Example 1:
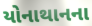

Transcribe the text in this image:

યોનાથાનના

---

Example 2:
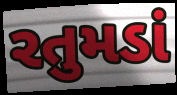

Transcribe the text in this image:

રતુમડાં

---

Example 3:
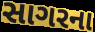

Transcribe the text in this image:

સાગરના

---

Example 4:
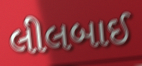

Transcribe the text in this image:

લીલબાઈ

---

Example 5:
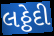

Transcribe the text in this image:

લઠ્ઠેદી